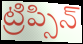
ట్రిప్సిన్